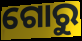
ଗୋରୁ